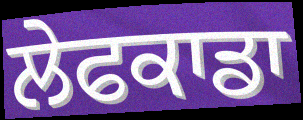
ਲੇਫਕਾਡਾ